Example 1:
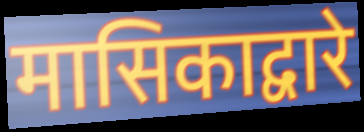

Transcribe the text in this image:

मासिकाद्वारे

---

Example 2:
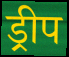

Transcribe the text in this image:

ड्रीप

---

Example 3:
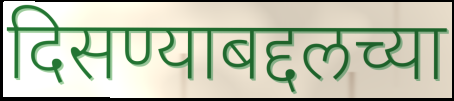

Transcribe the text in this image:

दिसण्याबद्दलच्या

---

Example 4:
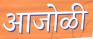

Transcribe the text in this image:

आजोळी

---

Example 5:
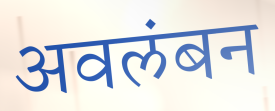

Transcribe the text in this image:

अवलंबन